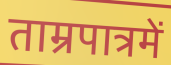
ताम्रपात्रमें